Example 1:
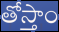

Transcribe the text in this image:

తోస్తాం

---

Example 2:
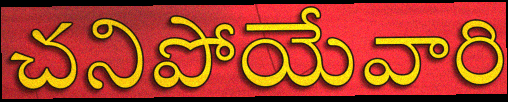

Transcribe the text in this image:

చనిపోయేవారి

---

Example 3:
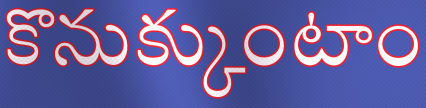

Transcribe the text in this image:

కొనుక్కుంటాం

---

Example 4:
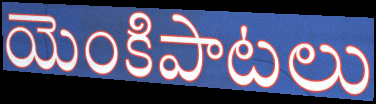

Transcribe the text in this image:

యెంకిపాటలు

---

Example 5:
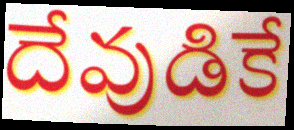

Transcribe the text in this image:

దేవుడికే